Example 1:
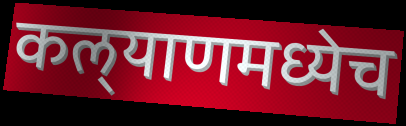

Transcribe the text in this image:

कल्याणमध्येच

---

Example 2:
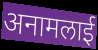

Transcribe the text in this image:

अनामलाई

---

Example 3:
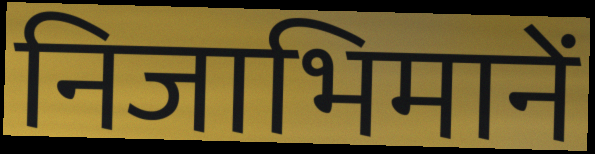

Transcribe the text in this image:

निजाभिमानें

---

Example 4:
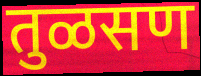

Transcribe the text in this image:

तुळसण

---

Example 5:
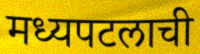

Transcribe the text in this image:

मध्यपटलाची